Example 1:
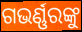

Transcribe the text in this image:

ଗଭର୍ଣ୍ଣରଙ୍କୁ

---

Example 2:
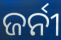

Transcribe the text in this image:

ଜର୍ନୀ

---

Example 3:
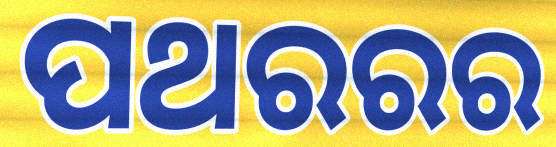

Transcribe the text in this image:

ପଥରରର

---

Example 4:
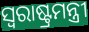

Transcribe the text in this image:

ସ୍ବରାଷ୍ଟ୍ରମନ୍ତ୍ରୀ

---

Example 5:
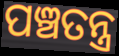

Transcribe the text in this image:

ପଞ୍ଚତନ୍ତ୍ର